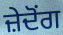
ਜ਼ੇਦੋਂਗ